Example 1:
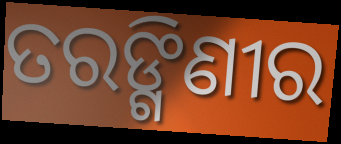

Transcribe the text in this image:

ତରଙ୍ଗିଣୀର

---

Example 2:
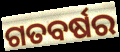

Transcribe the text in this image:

ଗତବର୍ଷର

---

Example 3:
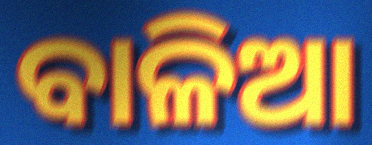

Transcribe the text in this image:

ବାଳିଆ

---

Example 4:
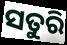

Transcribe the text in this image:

ସତୁରି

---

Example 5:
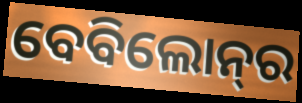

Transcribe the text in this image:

ବେବିଲୋନ୍‌ର